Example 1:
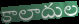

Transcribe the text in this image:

కాలాదుల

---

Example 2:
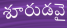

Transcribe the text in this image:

శూరుడవై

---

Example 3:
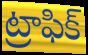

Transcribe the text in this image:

ట్రాఫిక్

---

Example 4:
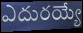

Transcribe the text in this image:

ఎదురయ్యే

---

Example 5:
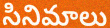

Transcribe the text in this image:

సినిమాలు